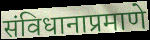
संविधानाप्रमाणे